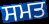
ਸਮਤ